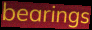
bearings